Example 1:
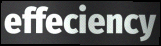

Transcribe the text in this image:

effeciency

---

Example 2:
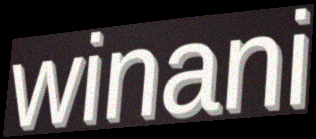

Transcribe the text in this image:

winani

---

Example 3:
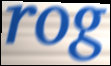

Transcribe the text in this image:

rog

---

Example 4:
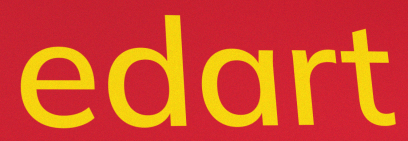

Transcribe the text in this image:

edart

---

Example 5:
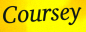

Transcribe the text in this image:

Coursey